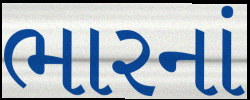
ભારનાં